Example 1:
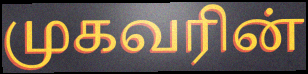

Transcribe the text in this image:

முகவரின்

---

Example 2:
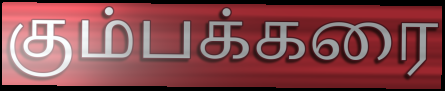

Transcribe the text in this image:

கும்பக்கரை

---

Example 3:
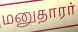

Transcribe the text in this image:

மனுதாரர்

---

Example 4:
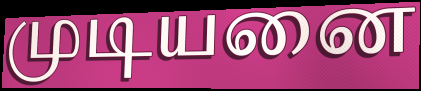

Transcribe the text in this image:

முடியனை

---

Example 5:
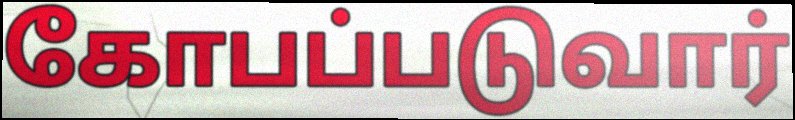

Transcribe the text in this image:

கோபப்படுவார்